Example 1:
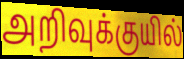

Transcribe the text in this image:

அறிவுக்குயில்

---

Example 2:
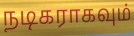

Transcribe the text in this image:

நடிகராகவும்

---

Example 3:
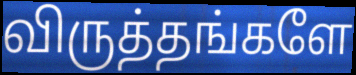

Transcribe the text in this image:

விருத்தங்களே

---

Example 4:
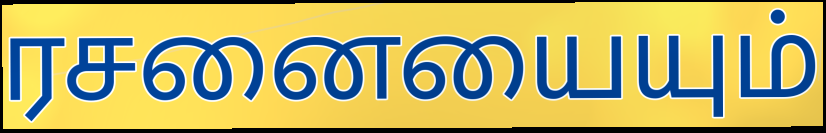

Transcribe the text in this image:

ரசனையையும்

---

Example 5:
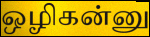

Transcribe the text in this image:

ஒழிகன்னு